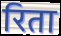
रिता